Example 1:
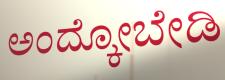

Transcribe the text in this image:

ಅಂದ್ಕೋಬೇಡಿ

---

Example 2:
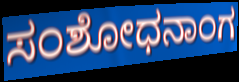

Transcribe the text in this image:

ಸಂಶೋಧನಾಂಗ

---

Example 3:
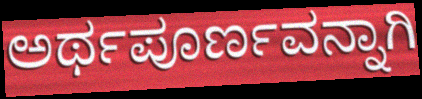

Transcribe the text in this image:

ಅರ್ಥಪೂರ್ಣವನ್ನಾಗಿ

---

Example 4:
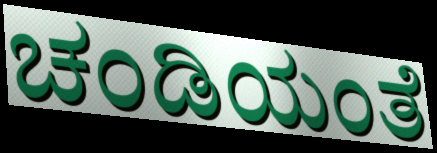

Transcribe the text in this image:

ಚಂಡಿಯಂತೆ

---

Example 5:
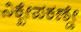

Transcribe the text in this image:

ನಿಕ್ಖೇಪಕಣ್ಡೇ